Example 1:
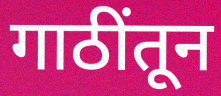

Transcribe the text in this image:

गाठींतून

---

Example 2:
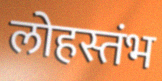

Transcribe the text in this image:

लोहस्तंभ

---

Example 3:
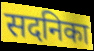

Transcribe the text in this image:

सदनिका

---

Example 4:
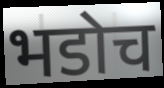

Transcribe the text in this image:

भडोच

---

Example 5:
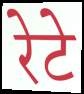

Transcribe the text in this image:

रेटे